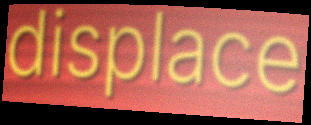
displace